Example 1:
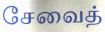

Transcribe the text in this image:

சேவைத்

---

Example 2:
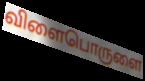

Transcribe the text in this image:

விளைபொருளை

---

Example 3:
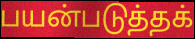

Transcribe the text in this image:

பயன்படுத்தக்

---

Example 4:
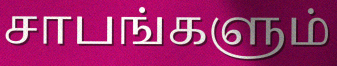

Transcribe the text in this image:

சாபங்களும்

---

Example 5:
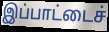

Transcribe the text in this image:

இப்பாட்டைச்